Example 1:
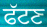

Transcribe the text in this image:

ਫੱਟਣ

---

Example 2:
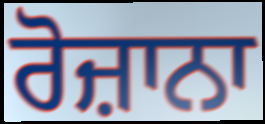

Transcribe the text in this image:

ਰੋਜ਼ਾਨਾ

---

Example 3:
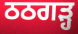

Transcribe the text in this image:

ਠਠਗੜ੍ਹ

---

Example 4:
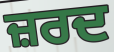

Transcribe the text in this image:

ਜ਼ਰਦ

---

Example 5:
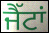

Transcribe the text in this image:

ਜੈੱਟਾਂ